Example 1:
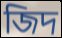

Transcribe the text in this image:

জিদ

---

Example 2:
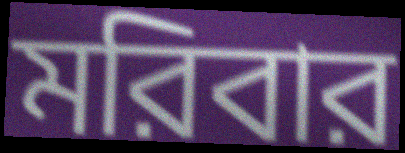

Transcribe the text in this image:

মরিবার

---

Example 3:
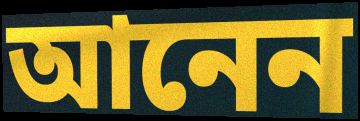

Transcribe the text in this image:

আনেন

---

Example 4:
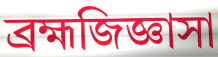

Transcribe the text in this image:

ব্রহ্মজিজ্ঞাসা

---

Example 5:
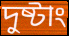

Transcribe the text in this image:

দুষ্টাং